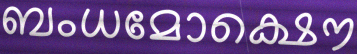
ബംധമോക്ഷൌ